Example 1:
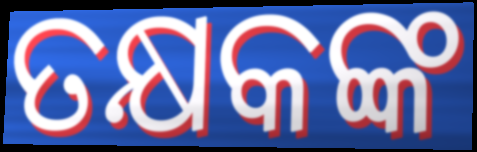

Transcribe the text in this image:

ତକ୍ଷକଙ୍କ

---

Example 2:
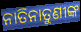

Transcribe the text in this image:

ନାତିନାତୁଣୀଙ୍କ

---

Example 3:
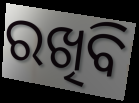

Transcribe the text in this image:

ରଖିବି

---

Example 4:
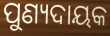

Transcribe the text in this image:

ପୁଣ୍ୟଦାୟକ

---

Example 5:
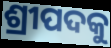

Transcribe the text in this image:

ଶ୍ରୀପଦକୁ